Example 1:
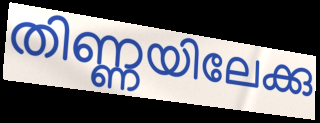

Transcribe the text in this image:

തിണ്ണയിലേക്കു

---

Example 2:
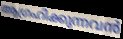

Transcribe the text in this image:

ആഗ്രഹിക്കുന്നവൻ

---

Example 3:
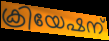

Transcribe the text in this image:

ക്രിയേഷന്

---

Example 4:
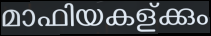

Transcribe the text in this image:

മാഫിയകള്ക്കും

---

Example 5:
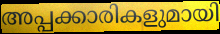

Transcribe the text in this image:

അപ്പക്കാരികളുമായി